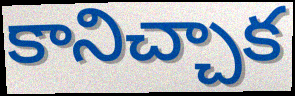
కానిచ్చాక